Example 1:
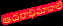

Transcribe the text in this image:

ఆదరాభిమానాలే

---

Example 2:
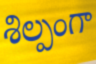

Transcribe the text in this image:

శిల్పంగా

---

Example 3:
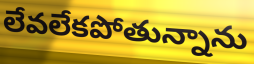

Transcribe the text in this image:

లేవలేకపోతున్నాను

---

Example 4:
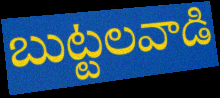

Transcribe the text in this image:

బుట్టలవాడి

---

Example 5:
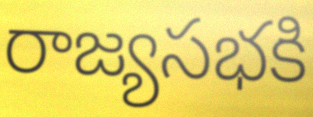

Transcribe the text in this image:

రాజ్యసభకి